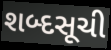
શબ્દસૂચી